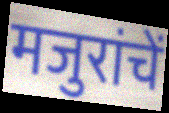
मजुरांचें